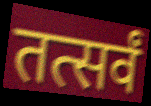
तत्सर्वं